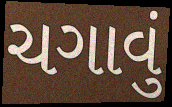
ચગાવું